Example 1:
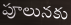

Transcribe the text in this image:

పూలునకు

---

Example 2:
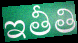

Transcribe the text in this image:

ఇతీతి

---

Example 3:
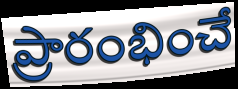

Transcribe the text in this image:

ప్రారంభించే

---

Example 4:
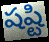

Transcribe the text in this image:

షష్టి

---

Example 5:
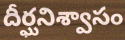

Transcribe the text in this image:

దీర్ఘనిశ్వాసం